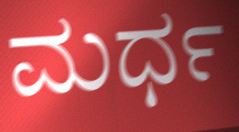
ಮರ್ಧ